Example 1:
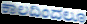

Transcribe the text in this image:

ಕಾಲದಿಂದಲೂ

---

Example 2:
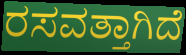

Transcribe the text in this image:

ರಸವತ್ತಾಗಿದೆ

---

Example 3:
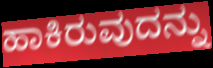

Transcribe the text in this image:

ಹಾಕಿರುವುದನ್ನು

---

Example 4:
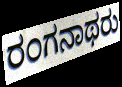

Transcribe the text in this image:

ರಂಗನಾಥರು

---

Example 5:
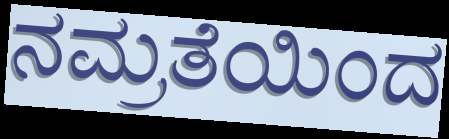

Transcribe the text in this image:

ನಮ್ರತೆಯಿಂದ